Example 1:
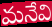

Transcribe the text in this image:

మనేవి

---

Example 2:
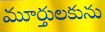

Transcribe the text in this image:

మూర్తులకును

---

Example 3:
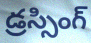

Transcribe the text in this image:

డ్రస్సింగ్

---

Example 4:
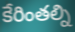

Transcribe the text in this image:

కేరింతల్ని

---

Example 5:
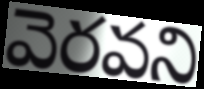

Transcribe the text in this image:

వెరవని